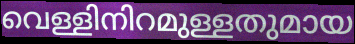
വെള്ളിനിറമുള്ളതുമായ